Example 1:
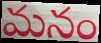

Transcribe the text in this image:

మనం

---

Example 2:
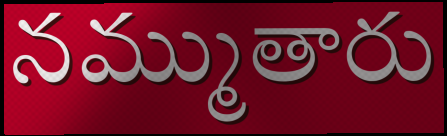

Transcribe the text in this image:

నమ్ముతారు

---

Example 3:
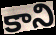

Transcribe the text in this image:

కాని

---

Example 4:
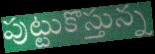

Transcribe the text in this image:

పుట్టుకొస్తున్న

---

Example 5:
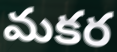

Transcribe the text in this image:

మకర